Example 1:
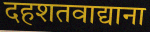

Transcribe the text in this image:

दहशतवाद्याना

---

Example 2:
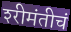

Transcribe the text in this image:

श्रीमंतीचं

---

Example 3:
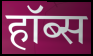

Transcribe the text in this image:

हॉब्स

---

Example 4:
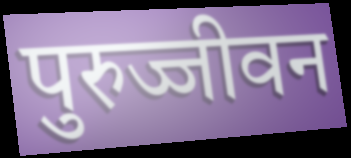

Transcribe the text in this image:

पुरुज्जीवन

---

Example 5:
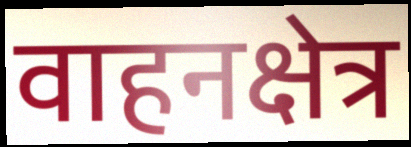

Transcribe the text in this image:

वाहनक्षेत्र